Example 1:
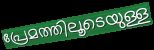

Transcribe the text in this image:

പ്രേമത്തിലൂടെയുള്ള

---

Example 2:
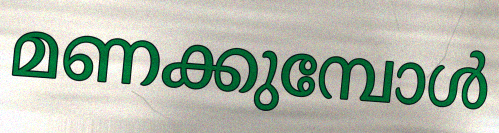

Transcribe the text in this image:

മണക്കുമ്പോൾ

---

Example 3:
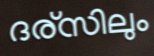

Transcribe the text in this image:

ദര്സിലും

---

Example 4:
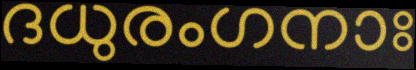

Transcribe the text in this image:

ദധുരംഗനാഃ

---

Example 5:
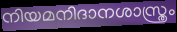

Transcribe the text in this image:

നിയമനിദാനശാസ്ത്രം